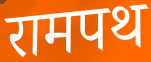
रामपथ